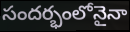
సందర్భంలోనైనా